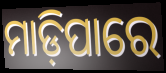
ମାଡ଼ିପାରେ